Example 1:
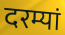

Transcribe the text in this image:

दरम्यां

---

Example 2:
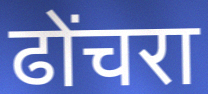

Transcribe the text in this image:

ढोंचरा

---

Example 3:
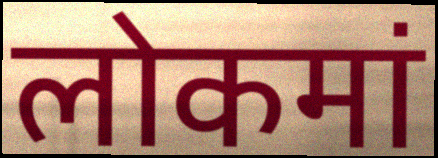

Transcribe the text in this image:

लोकमां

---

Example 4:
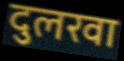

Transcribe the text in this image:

दुलरवा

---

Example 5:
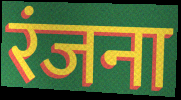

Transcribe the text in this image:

रंजना